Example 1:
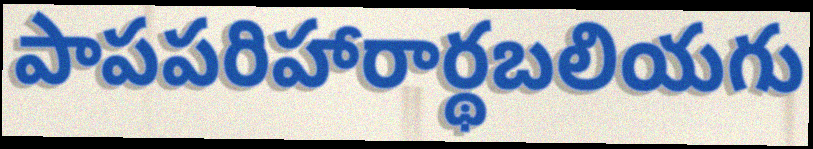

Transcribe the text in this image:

పాపపరిహారార్థబలియగు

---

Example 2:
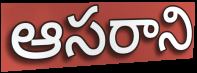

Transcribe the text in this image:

ఆసరాని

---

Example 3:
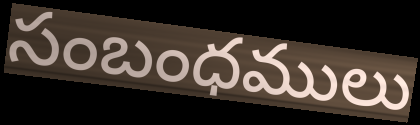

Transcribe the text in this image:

సంబంధములు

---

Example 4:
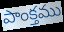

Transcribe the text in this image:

పాంక్తము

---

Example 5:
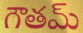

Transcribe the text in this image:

గౌతమ్